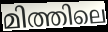
മിത്തിലെ